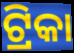
ଟ୍ରିକା